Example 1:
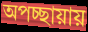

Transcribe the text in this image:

অপচ্ছায়ায়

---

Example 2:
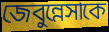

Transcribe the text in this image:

জেবুন্নেসাকে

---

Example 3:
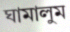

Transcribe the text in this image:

ঘামালুম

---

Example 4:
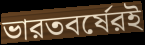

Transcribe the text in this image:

ভারতবর্ষেরই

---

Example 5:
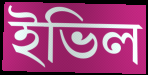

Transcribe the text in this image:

ইভিল